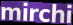
mirchi